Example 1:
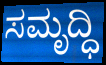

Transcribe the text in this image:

ಸಮೃದ್ಧಿ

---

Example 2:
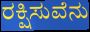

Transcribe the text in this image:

ರಕ್ಷಿಸುವೆನು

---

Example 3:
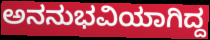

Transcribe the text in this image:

ಅನನುಭವಿಯಾಗಿದ್ದ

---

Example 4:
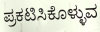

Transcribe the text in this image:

ಪ್ರಕಟಿಸಿಕೊಳ್ಳುವ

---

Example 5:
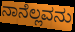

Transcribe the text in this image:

ನಾನೆಲ್ಲವನು